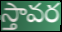
స్తావర